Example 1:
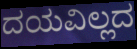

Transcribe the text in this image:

ದಯವಿಲ್ಲದ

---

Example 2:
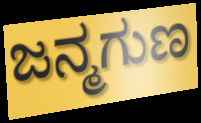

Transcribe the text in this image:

ಜನ್ಮಗುಣ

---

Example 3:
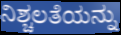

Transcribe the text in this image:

ನಿಶ್ಚಲತೆಯನ್ನು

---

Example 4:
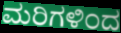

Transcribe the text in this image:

ಮರಿಗಳಿಂದ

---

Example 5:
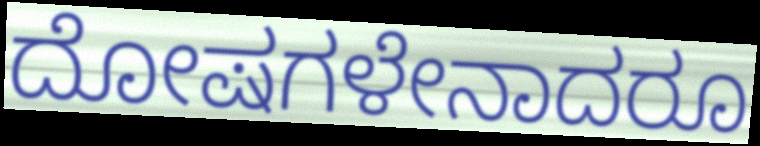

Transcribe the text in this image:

ದೋಷಗಳೇನಾದರೂ